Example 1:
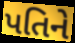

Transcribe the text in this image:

પતિને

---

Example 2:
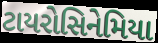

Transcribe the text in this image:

ટાયરોસિનેમિયા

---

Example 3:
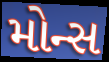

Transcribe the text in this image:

મોન્સ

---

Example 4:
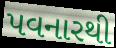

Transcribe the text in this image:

પવનારથી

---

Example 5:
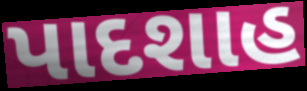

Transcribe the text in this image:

પાદશાહ